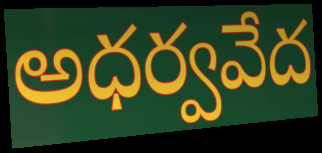
అధర్వవేద